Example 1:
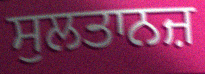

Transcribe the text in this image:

ਸੁਲਤਾਨਜ਼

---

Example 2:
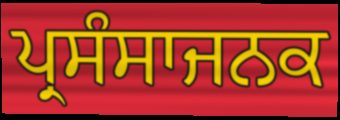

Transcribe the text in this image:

ਪ੍ਰਸੰਸਾਜਨਕ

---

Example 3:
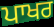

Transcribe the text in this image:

ਪਾਖਰ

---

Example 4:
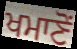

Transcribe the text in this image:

ਖਮਾਣੋਂ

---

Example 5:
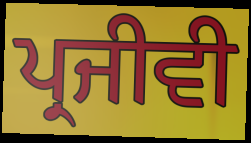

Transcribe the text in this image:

ਪ੍ਰਜੀਵੀ